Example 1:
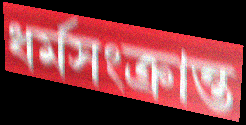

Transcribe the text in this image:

ধর্মসংক্রান্ত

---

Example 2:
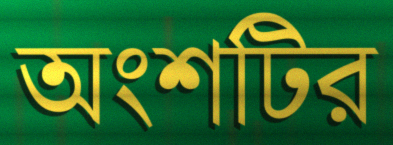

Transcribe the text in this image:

অংশটির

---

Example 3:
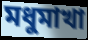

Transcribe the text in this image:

মধুমাখা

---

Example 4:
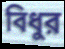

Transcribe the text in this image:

বিধুর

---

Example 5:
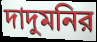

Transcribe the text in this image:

দাদুমনির